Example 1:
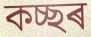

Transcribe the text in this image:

কচ্ছৰ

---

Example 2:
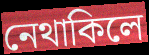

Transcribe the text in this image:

নেথাকিলে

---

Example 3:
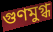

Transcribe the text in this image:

গুণমুগ্ধ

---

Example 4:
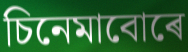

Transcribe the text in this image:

চিনেমাবোৰে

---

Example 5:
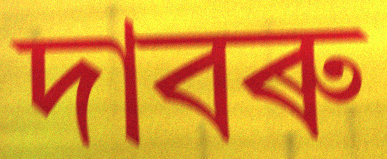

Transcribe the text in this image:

দাবৰু